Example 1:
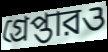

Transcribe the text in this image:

গ্রেপ্তারও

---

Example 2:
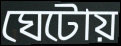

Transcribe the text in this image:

ঘেটোয়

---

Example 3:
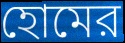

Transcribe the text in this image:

হোমের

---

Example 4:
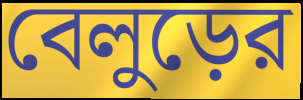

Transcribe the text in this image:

বেলুড়ের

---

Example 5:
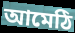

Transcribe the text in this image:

আমেঠি